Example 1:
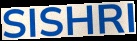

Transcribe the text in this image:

SISHRI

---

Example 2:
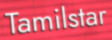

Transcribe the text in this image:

Tamilstar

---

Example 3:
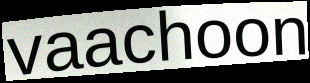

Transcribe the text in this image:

vaachoon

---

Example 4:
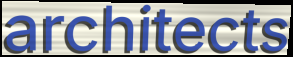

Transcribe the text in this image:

architects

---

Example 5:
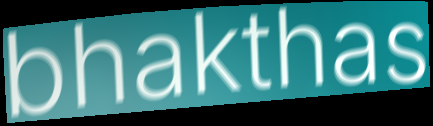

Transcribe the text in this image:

bhakthas